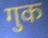
गुक